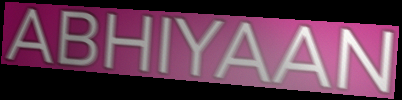
ABHIYAAN